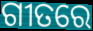
ଗୀତରେ